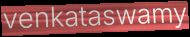
venkataswamy